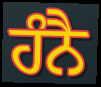
ਹੰਨੈ